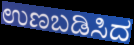
ಉಣಬಡಿಸಿದ